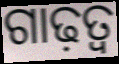
ଗାଢ଼ତ୍ବ